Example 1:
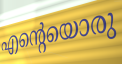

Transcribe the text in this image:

എന്റെയൊരു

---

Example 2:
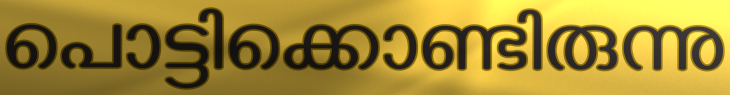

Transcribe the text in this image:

പൊട്ടിക്കൊണ്ടിരുന്നു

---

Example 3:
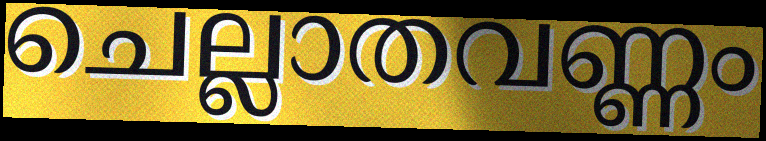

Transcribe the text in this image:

ചെല്ലാതവണ്ണം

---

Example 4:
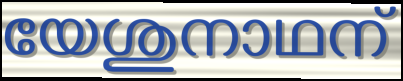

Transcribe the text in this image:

യേശുനാഥന്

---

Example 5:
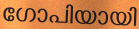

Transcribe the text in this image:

ഗോപിയായി